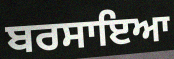
ਬਰਸਾਇਆ